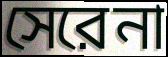
সেরেনা